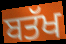
ਬਤੱਖ